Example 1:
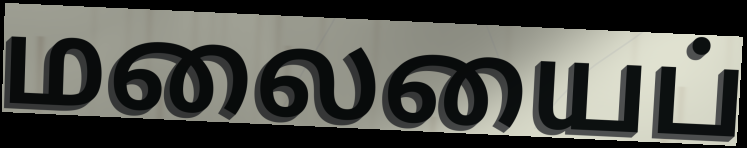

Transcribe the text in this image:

மலையைப்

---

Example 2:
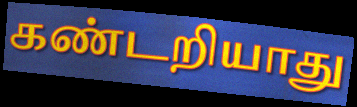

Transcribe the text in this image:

கண்டறியாது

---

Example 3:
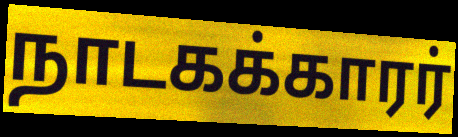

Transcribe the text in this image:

நாடகக்காரர்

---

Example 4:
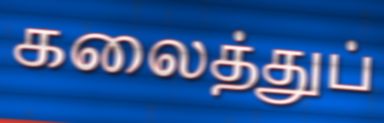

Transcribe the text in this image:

கலைத்துப்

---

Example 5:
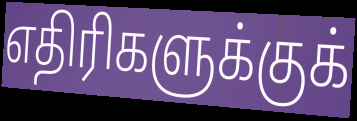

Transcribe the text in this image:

எதிரிகளுக்குக்